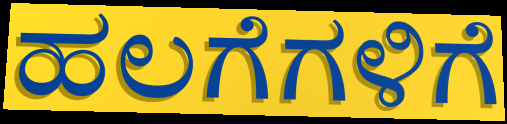
ಹಲಗೆಗಳಿಗೆ